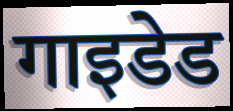
गाइडेड